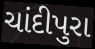
ચાંદીપુરા